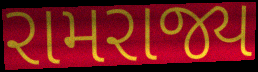
રામરાજ્ય